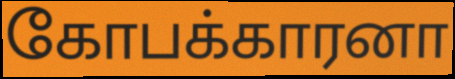
கோபக்காரனா